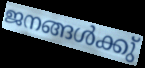
ജനങ്ങൾക്കു്